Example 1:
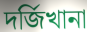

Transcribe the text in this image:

দর্জিখানা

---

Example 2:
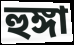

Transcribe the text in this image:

হুঙ্গা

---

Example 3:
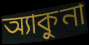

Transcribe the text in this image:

অ্যাকুনা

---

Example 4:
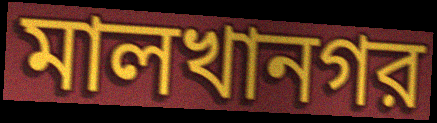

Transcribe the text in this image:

মালখানগর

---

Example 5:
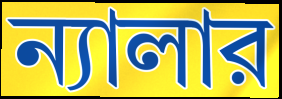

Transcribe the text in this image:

ন্যালার